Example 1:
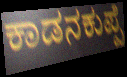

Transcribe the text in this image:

ಕಾಡನಕುಪ್ಪೆ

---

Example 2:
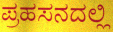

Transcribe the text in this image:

ಪ್ರಹಸನದಲ್ಲಿ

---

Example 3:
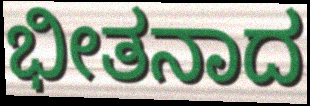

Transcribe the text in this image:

ಭೀತನಾದ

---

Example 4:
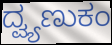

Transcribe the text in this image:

ದ್ವ್ಯಣುಕಂ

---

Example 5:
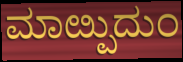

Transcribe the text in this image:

ಮಾೞ್ಪುದುಂ